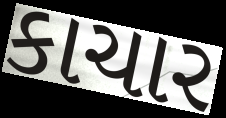
કાચાર